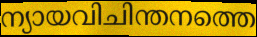
ന്യായവിചിന്തനത്തെ